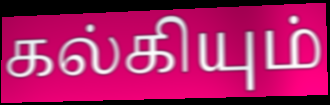
கல்கியும்